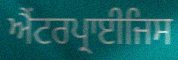
ਐਂਟਰਪ੍ਰਾਈਜਿਸ